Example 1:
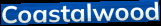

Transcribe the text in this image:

Coastalwood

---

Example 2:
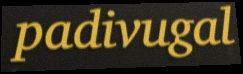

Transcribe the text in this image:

padivugal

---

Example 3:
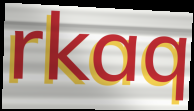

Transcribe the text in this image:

rkaq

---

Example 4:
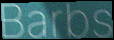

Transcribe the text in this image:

Barbs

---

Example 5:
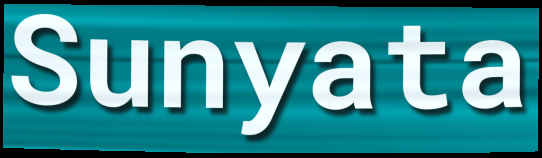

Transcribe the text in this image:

Sunyata